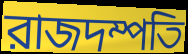
রাজদম্পতি